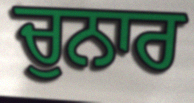
ਚੁਨਾਰ